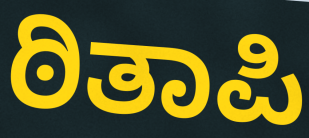
ಠಿತಾಪಿ